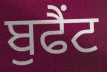
ਬੁਫੈਂਟ